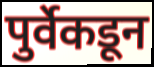
पुर्वेकडून